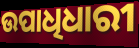
ଉପାଧିଧାରୀ